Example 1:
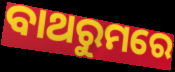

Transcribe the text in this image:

ବାଥରୁମରେ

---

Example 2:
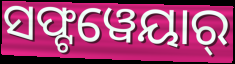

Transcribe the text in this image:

ସଫ୍ଟୱେୟାର୍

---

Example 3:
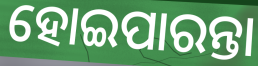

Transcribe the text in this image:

ହୋଇପାରନ୍ତା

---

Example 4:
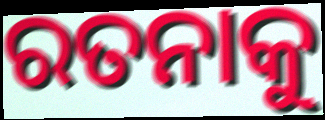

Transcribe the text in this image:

ରତନାକୁ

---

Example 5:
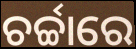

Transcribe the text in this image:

ଚର୍ଚ୍ଚାରେ